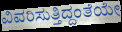
ವಿವರಿಸುತ್ತಿದ್ದಂತೆಯೇ